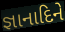
જ્ઞાનાદિને